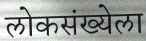
लोकसंख्येला